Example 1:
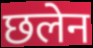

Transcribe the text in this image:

छलेन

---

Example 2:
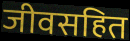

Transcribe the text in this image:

जीवसहित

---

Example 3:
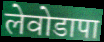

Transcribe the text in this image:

लेवोडापा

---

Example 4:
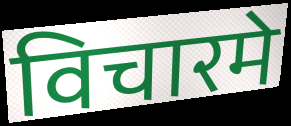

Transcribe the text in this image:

विचारमे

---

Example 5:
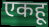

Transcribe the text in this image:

एकहू